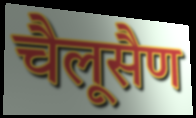
चैलूसैण